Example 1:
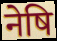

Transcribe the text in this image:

नेषि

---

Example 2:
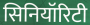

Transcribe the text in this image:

सिनियॉरिटी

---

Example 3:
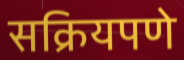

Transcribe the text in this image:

सक्रियपणे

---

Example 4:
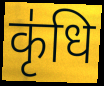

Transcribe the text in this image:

कृ॑धि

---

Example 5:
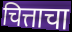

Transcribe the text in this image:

चित्ताचा